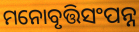
ମନୋବୃତ୍ତିସଂପନ୍ନ